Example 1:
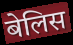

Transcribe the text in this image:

बेलिस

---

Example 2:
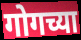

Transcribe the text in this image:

गोगच्या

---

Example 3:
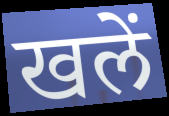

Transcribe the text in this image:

खलें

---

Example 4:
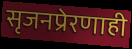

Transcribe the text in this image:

सृजनप्रेरणाही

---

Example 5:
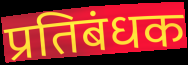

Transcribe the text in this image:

प्रतिबंधक